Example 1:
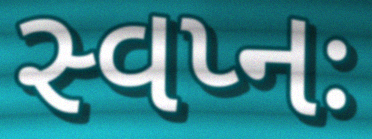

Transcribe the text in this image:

સ્વપ્નઃ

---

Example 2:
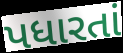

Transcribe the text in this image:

પધારતાં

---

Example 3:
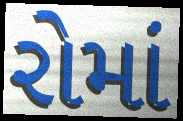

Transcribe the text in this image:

રોમાં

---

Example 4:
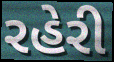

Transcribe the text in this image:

રહેરી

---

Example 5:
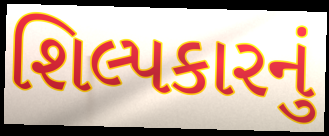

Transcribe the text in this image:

શિલ્પકારનું